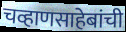
चव्हाणसाहेबांची